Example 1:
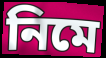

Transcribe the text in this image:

নিমে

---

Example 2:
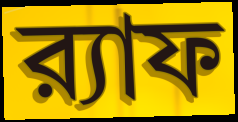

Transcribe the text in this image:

র‍্যাফ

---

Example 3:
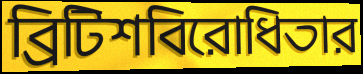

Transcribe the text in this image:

ব্রিটিশবিরোধিতার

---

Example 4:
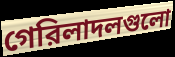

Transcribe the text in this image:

গেরিলাদলগুলো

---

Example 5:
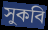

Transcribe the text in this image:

সুকবি